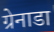
ग्रेनाडा